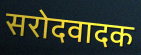
सरोदवादक